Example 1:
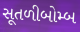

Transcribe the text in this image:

સૂતળીબોમ્બ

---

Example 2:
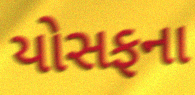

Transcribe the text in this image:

યોસફના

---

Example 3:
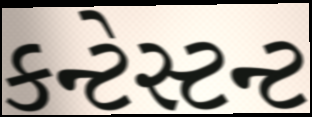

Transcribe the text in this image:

કન્ટેસ્ટન્ટ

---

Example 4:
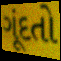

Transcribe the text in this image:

ગૂંદતો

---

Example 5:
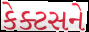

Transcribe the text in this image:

કેક્ટસને